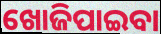
ଖୋଜିପାଇବା